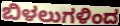
ಬಿಳಲುಗಳಿಂದ